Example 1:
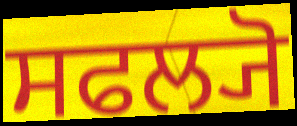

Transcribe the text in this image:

ਸਫਲ੍ਯੋ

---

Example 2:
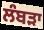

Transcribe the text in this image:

ਲੰਬੜਾ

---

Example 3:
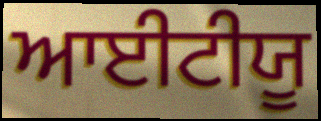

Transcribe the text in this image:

ਆਈਟੀਯੂ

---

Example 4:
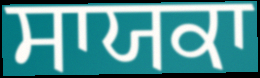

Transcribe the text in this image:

ਸਾਯਕਾ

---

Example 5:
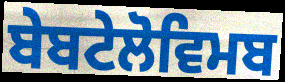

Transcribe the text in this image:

ਬੇਬਟੇਲੋਵਿਮਬ